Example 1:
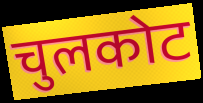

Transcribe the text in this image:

चुलकोट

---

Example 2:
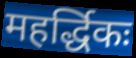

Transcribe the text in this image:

महर्द्धिकः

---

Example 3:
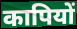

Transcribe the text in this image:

कापियों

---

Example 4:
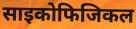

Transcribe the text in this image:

साइकोफिजिकल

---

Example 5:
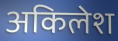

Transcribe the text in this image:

अकिलेश